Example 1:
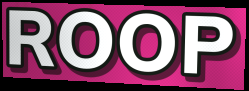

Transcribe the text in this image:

ROOP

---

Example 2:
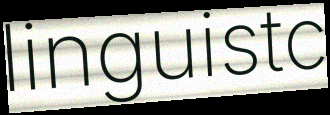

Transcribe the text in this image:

linguistc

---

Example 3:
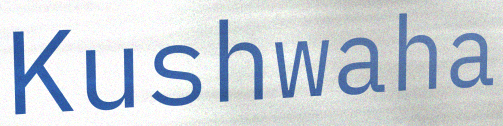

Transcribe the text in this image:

Kushwaha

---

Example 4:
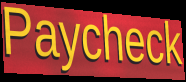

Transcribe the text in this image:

Paycheck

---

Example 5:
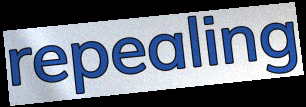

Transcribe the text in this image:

repealing